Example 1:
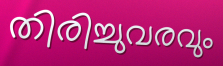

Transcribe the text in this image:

തിരിച്ചുവരവും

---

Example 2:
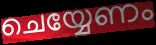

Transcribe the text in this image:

ചെയ്യേണം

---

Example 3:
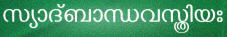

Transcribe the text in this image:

സ്യാദ്ബാന്ധവസ്ത്രിയഃ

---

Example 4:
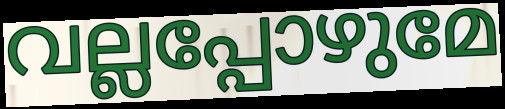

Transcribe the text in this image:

വല്ലപ്പോഴുമേ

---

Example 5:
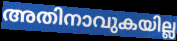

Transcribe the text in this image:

അതിനാവുകയില്ല